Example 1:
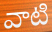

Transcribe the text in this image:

వాటి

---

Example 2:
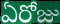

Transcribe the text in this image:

ఏరోజు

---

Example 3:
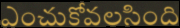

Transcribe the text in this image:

ఎంచుకోవలసింది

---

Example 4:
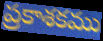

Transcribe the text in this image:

ప్రకాశకము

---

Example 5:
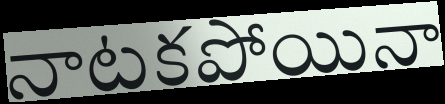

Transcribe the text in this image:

నాటకపోయినా